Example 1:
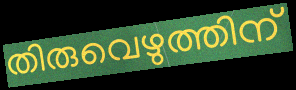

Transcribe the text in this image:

തിരുവെഴുത്തിന്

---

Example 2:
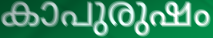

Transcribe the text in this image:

കാപുരുഷം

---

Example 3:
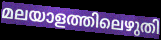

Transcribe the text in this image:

മലയാളത്തിലെഴുതി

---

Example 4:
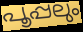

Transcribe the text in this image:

പൂപ്പലും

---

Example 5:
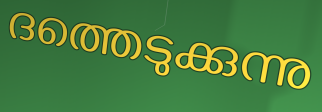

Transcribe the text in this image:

ദത്തെടുക്കുന്നു